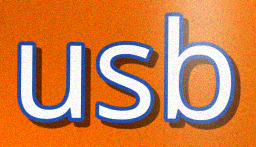
usb